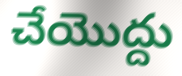
చేయొద్దు